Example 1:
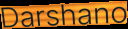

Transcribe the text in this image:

Darshano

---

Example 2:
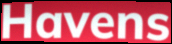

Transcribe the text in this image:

Havens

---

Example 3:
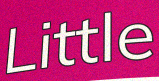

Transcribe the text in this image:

Little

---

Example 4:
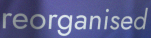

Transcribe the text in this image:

reorganised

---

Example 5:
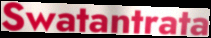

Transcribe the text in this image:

Swatantrata